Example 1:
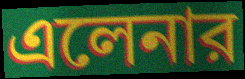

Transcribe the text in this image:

এলেনার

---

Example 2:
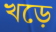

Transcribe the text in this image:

খড়ে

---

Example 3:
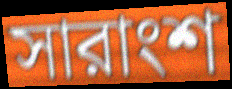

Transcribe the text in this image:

সারাংশ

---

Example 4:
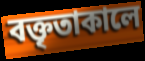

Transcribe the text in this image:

বক্তৃতাকালে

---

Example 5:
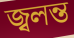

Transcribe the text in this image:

জ্বলন্ত